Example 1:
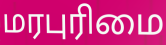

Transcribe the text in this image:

மரபுரிமை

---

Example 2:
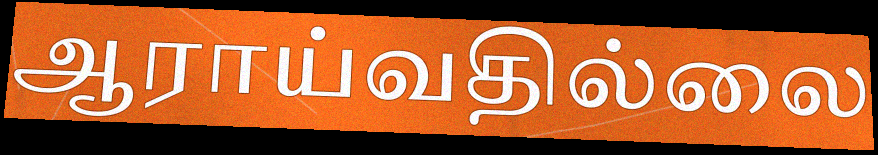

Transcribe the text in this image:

ஆராய்வதில்லை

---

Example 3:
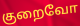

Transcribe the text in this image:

குறைவோ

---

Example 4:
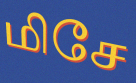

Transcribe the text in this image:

மிசே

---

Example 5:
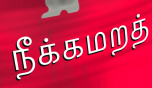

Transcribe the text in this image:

நீக்கமறத்